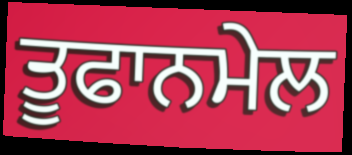
ਤੂਫਾਨਮੇਲ